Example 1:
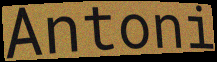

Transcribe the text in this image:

Antoni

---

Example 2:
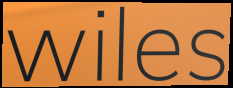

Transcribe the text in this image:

wiles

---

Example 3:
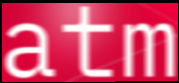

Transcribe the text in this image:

atm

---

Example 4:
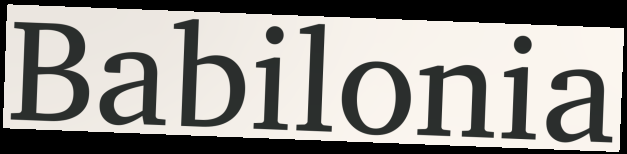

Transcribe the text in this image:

Babilonia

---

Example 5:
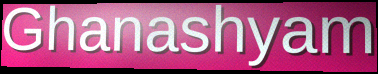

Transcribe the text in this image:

Ghanashyam